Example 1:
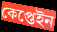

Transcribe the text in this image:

কেপ্তেইন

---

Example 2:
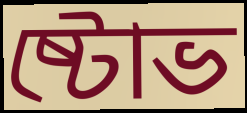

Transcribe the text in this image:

ষ্টোভ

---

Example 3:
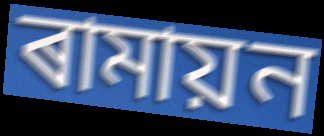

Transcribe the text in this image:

ৰামায়ন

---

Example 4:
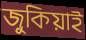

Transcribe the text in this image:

জুকিয়াই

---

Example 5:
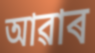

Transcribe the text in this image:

আৱাৰ